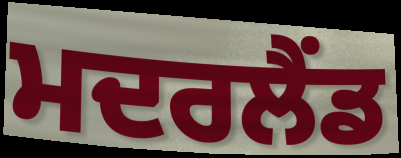
ਮਦਰਲੈਂਡ